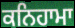
ਕਨਿਹਾਮਾ